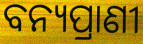
ବନ୍ୟପ୍ରାଣୀ